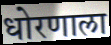
धोरणाला